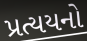
પ્રત્યયનો